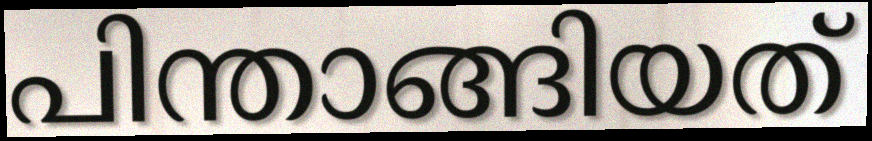
പിന്താങ്ങിയത്